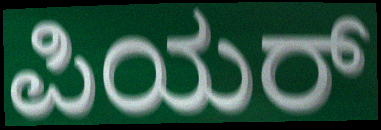
ಪಿಯರ್